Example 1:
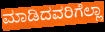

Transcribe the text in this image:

ಮಾಡಿದವರಿಗೆಲ್ಲಾ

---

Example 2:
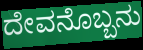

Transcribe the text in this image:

ದೇವನೊಬ್ಬನು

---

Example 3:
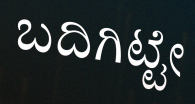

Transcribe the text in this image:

ಬದಿಗಿಟ್ಟೇ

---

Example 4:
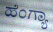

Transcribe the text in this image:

ಹೆಂಗ್ಯಾ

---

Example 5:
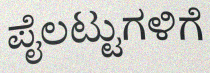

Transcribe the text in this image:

ಪೈಲಟ್ಟುಗಳಿಗೆ